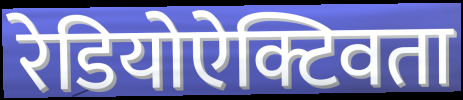
रेडियोऐक्टिवता